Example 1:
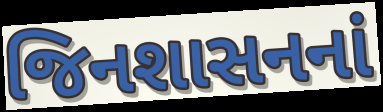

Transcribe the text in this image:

જિનશાસનનાં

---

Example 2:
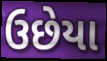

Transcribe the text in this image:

ઉછેયા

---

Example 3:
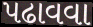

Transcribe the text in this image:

પઢાવવા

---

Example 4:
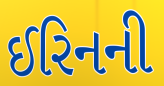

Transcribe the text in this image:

ઈરિનની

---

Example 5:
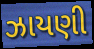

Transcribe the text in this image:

ઝાયણી